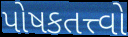
પોષકતત્ત્વો